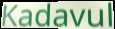
Kadavul